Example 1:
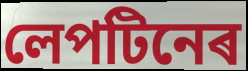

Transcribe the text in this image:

লেপটিনেৰ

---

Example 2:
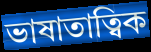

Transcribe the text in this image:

ভাষাতাত্বিক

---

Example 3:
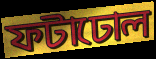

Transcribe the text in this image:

ফটাঢোল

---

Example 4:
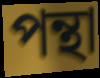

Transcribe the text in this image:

পন্থা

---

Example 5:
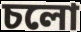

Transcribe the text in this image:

চলো